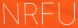
NRFU